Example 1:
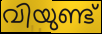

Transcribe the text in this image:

വിയുണ്ട്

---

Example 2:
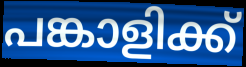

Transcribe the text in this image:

പങ്കാളിക്ക്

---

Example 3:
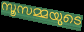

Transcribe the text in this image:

സൂസമ്മയുടെ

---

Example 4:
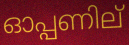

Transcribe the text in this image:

ഓപ്പണില്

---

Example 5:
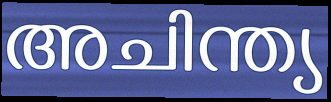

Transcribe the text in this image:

അചിന്ത്യ